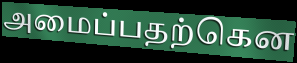
அமைப்பதற்கென